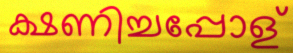
ക്ഷണിച്ചപ്പോള്